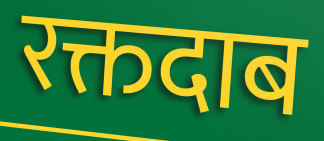
रक्तदाब